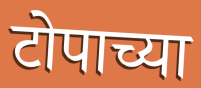
टोपाच्या